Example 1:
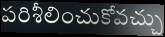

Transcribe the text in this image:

పరిశీలించుకోవచ్చు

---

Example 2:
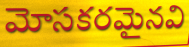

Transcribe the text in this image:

మోసకరమైనవి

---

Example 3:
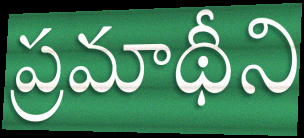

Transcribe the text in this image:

ప్రమాథీని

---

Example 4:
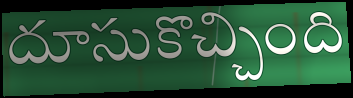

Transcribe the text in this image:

దూసుకొచ్చింది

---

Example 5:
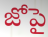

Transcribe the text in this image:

జోపై